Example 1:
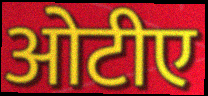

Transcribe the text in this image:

ओटीए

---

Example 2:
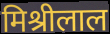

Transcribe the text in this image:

मिश्रीलाल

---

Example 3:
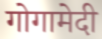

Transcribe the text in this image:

गोगामेदी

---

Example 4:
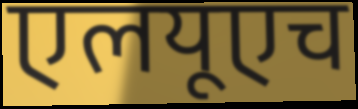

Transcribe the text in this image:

एलयूएच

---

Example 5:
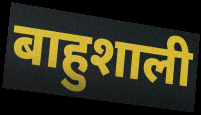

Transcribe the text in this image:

बाहुशाली